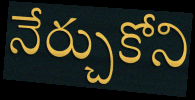
నేర్చుకోని